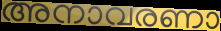
അനാവരണാ